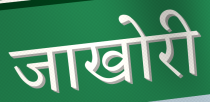
जाखोरी